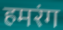
हमरंग